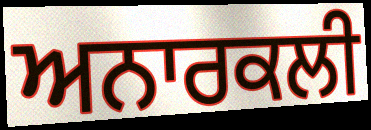
ਅਨਾਰਕਲੀ